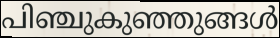
പിഞ്ചുകുഞ്ഞുങ്ങൾ